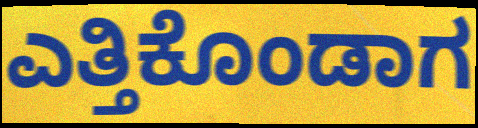
ಎತ್ತಿಕೊಂಡಾಗ